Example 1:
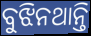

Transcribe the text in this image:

ବୁଝିନଥାନ୍ତି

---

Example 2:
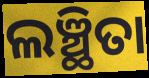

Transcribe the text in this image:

ଲଞ୍ଛିତା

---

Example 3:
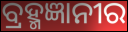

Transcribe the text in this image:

ବ୍ରହ୍ମଜ୍ଞାନୀର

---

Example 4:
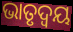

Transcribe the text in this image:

ଭାତୃଦ୍ବୟ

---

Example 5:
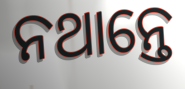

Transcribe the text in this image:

ନଥାନ୍ତେ